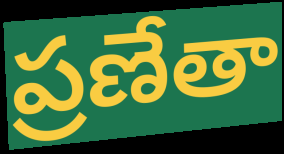
ప్రణేతా